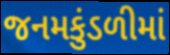
જનમકુંડળીમાં